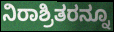
ನಿರಾಶ್ರಿತರನ್ನೂ